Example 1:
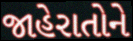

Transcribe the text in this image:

જાહેરાતોને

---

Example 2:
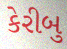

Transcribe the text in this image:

કેરીબુ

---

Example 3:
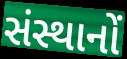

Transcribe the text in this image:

સંસ્થાનોં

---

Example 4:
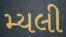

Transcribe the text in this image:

મ્યલી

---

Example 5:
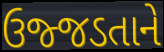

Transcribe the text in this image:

ઉજ્જડતાને